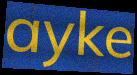
ayke